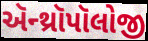
ઍન્થ્રૉપૉલોજી